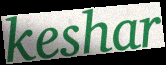
keshar